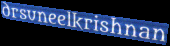
drsuneelkrishnan